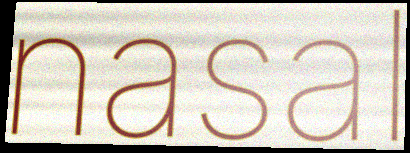
nasal